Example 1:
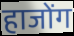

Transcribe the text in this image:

हाजोंग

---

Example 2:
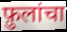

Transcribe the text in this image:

फ़ुलांचा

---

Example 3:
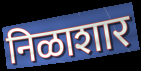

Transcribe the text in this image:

निळाशार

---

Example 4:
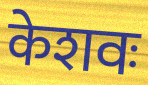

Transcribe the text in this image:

केशवः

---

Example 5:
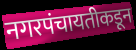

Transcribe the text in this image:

नगरपंचायतीकडून